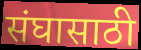
संघासाठी